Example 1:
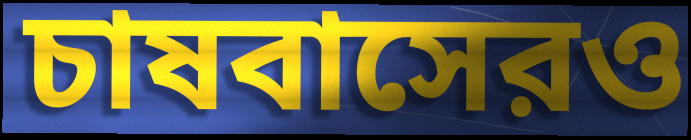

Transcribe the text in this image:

চাষবাসেরও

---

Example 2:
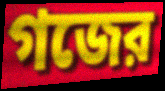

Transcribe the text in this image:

গজের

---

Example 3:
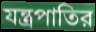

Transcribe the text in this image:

যন্ত্রপাতির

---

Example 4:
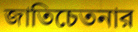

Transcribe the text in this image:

জাতিচেতনার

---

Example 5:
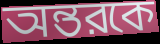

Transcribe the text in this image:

অন্তরকে